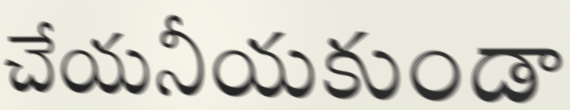
చేయనీయకుండా